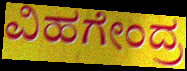
ವಿಹಗೇಂದ್ರ